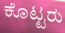
ಕೊಟ್ಟರು